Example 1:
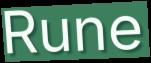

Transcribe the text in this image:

Rune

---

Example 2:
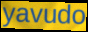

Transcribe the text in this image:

yavudo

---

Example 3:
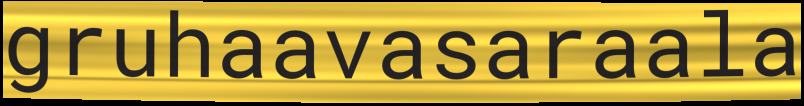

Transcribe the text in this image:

gruhaavasaraala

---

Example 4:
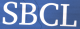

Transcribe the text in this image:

SBCL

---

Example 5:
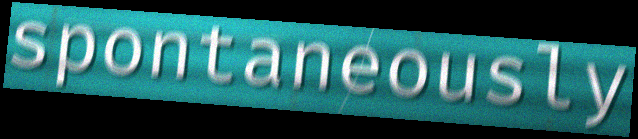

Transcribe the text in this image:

spontaneously